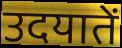
उदयातें